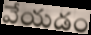
వేయడం